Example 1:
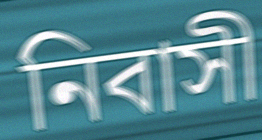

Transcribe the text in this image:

নিবাসী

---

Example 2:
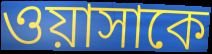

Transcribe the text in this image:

ওয়াসাকে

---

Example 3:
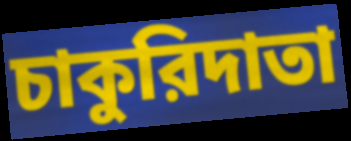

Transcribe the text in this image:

চাকুরিদাতা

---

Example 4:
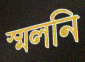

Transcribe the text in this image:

স্মলনি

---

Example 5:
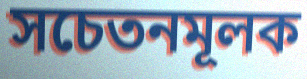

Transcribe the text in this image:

সচেতনমূলক